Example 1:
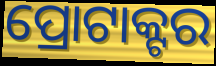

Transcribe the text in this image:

ପ୍ରୋଟାକ୍ଟର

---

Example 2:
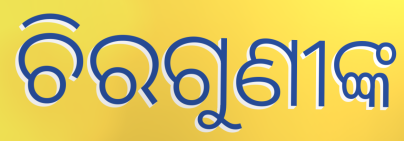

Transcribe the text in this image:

ଚିରଗୁଣୀଙ୍କ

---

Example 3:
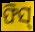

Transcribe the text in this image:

ଫିସ୍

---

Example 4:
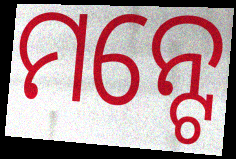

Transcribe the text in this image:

ମନ୍ଟେ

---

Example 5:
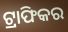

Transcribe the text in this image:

ଟ୍ରାଫିକର